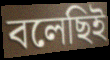
বলেছিই